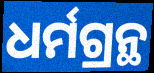
ଧର୍ମଗ୍ରନ୍ଥ